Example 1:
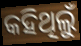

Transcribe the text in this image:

କହିଥିଲୁଁ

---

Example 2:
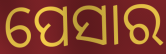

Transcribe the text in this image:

ପେସାର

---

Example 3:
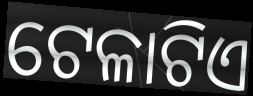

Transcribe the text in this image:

ଟେଳାଟିଏ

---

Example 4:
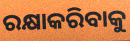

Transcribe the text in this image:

ରକ୍ଷାକରିବାକୁ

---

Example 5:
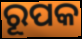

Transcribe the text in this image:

ରୂପକ